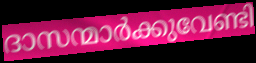
ദാസന്മാർക്കുവേണ്ടി